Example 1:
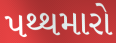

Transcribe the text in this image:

પથ્થમારો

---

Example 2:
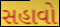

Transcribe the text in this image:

સહાવો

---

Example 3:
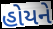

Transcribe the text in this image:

હોયને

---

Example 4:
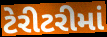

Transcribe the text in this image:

ટેરીટરીમાં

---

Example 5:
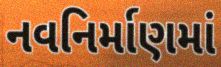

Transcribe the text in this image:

નવનિર્માણમાં